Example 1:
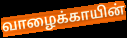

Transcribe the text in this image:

வாழைக்காயின்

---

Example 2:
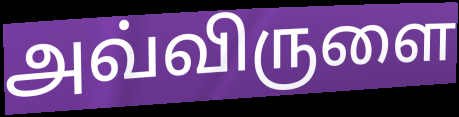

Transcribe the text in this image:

அவ்விருளை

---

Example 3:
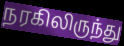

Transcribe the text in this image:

நரகிலிருந்து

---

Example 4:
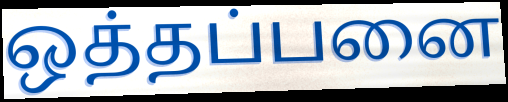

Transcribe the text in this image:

ஒத்தப்பனை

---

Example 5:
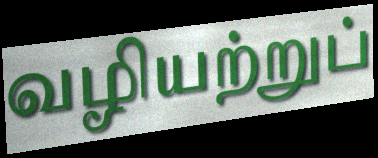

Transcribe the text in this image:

வழியற்றுப்